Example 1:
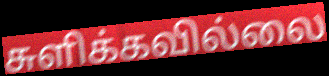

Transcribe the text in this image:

சுளிக்கவில்லை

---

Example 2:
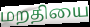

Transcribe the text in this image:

மறதியை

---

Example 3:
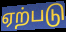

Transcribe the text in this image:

ஏற்படு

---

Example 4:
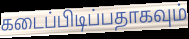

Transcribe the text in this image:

கடைப்பிடிப்பதாகவும்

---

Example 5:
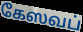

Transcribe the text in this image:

கேஸவப்